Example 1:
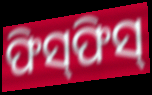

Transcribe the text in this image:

ଫିସ୍‍ଫିସ୍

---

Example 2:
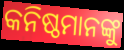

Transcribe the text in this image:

କନିଷ୍ଠମାନଙ୍କୁ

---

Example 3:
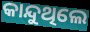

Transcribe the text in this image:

କାନ୍ଦୁଥିଲେ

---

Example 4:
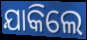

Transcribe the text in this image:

ଯାକିଲେ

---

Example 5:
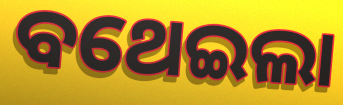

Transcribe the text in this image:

ବଥେଇଲା